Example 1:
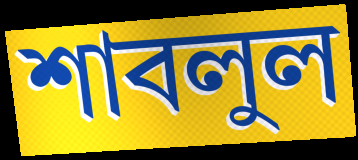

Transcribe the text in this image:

শাবলুল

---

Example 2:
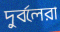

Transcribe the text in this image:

দুর্বলেরা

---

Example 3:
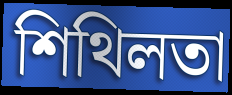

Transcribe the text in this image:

শিথিলতা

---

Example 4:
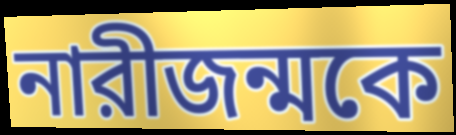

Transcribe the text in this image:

নারীজন্মকে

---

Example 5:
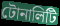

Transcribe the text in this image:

টোনালিটি